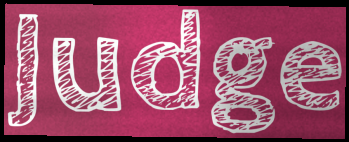
Judge